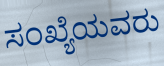
ಸಂಖ್ಯೆಯವರು